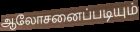
ஆலோசனைப்படியும்